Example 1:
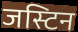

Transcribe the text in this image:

जस्‍टिन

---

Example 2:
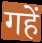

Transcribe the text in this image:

गहें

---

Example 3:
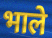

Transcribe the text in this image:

भाले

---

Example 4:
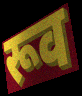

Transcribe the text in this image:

रूव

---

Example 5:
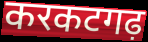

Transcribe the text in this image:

करकटगढ़